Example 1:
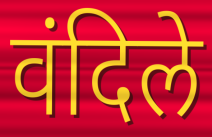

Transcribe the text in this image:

वंदिले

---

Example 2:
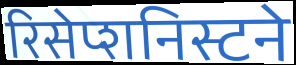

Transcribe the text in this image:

रिसेप्शनिस्टने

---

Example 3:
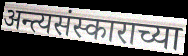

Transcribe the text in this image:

अन्त्यसंस्काराच्या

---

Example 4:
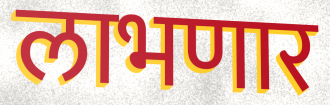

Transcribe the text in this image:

लाभणार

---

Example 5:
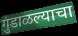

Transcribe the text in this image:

गुंडाळल्याचा